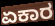
ಏಕಾರ